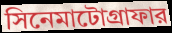
সিনেমাটোগ্রাফার